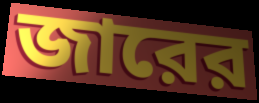
জারের